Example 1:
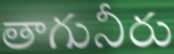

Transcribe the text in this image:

తాగునీరు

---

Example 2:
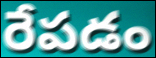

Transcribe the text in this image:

రేపడం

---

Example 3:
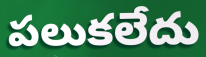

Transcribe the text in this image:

పలుకలేదు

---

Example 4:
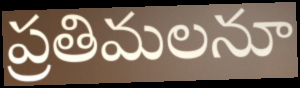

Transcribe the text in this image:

ప్రతిమలనూ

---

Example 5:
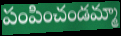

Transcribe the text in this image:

పంపించండమ్మా